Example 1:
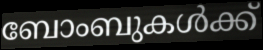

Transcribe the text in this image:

ബോംബുകൾക്ക്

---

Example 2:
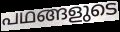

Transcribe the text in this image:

പഥങ്ങളുടെ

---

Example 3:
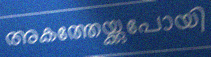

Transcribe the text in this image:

അകത്തേയ്ക്കുപോയി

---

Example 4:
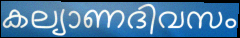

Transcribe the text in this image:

കല്യാണദിവസം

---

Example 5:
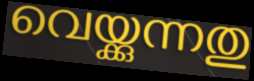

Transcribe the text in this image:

വെയ്ക്കുന്നതു